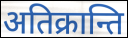
अतिक्रान्ति